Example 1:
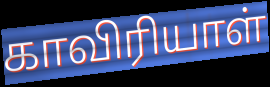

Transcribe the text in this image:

காவிரியாள்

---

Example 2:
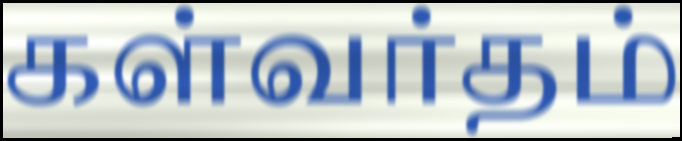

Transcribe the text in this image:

கள்வர்தம்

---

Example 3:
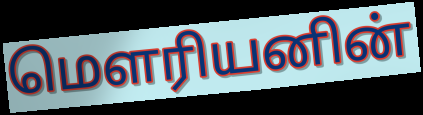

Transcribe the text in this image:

மௌரியனின்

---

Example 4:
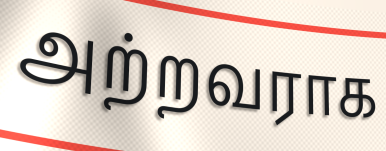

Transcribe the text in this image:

அற்றவராக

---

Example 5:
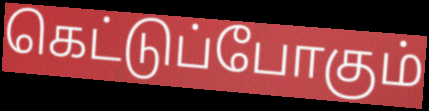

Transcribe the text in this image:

கெட்டுப்போகும்